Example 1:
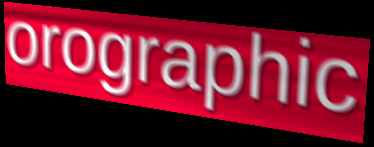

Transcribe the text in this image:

orographic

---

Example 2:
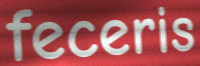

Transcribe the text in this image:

feceris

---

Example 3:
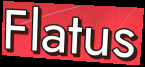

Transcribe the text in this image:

Flatus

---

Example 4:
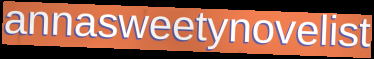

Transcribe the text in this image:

annasweetynovelist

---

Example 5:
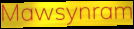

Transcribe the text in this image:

Mawsynram